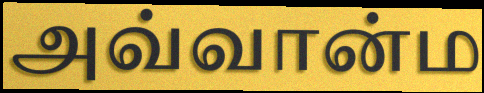
அவ்வான்ம